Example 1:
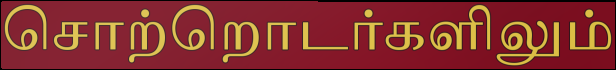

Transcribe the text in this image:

சொற்றொடர்களிலும்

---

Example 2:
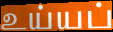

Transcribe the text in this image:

உய்யப்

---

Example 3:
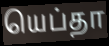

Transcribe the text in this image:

யெப்தா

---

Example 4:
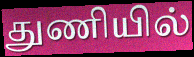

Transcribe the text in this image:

துணியில்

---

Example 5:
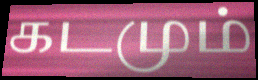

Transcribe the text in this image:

கடமும்